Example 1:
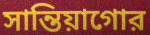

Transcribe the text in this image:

সান্তিয়াগোর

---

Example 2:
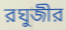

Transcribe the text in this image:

রঘুজীর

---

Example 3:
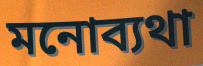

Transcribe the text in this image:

মনোব্যথা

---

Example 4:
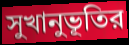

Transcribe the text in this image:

সুখানুভূতির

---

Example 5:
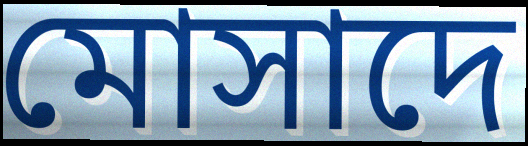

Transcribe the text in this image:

মোসাদে